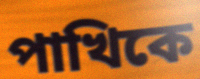
পাখিকে